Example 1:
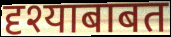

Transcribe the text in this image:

दृश्याबाबत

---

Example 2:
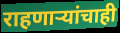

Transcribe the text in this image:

राहणाऱ्यांचाही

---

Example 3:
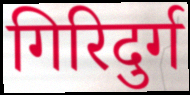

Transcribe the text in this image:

गिरिदुर्ग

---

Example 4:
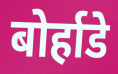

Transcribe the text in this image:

बोर्हाडे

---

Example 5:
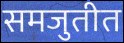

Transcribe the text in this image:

समजुतीत